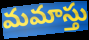
మమాస్తు